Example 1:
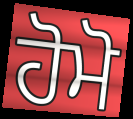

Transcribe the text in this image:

ਹੋਮੋ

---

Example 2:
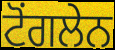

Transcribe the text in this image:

ਟੋਂਗਲੇਨ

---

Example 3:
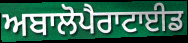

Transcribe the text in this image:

ਅਬਾਲੋਪੈਰਾਟਾਈਡ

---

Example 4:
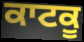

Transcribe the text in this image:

ਕਾਟਕੂ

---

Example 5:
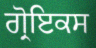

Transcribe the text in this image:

ਗ੍ਰੋਇਕਸ